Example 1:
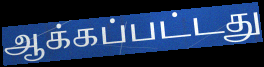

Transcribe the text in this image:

ஆக்கப்பட்டது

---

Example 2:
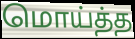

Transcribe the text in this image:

மொய்த்த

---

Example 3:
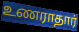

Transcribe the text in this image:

உணராதார்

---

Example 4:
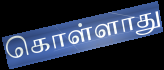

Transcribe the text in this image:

கொள்ளாது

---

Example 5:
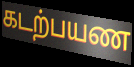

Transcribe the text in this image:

கடற்பயண